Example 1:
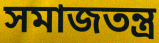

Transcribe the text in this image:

সমাজতন্ত্ৰ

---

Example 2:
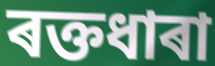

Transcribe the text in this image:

ৰক্তধাৰা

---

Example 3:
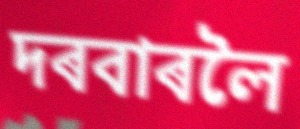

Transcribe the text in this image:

দৰবাৰলৈ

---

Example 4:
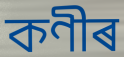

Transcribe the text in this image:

কণীৰ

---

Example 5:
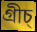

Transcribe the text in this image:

গ্ৰীচ্